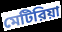
মেটিরিয়া